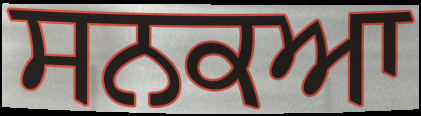
ਸਨਕਆ